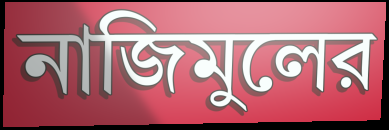
নাজিমুলের